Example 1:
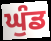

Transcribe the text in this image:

ਘੁੰਡ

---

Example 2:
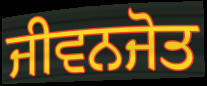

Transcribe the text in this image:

ਜੀਵਨਜੋਤ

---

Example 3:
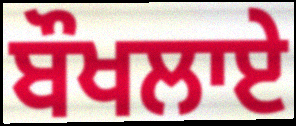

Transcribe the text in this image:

ਬੌਖਲਾਏ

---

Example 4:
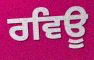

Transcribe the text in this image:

ਰਵਿਊ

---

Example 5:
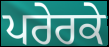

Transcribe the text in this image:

ਪਰੇਰਕੇ